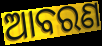
ଆବରଣ